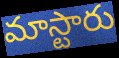
మాస్టారు